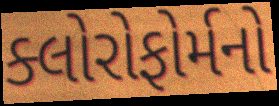
ક્લોરોફોર્મનો